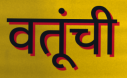
वतूंची